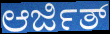
ಆರ್ಜಿತ್